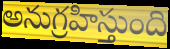
అనుగ్రహిస్తుంది